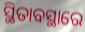
ସ୍ଥିତାବସ୍ଥାରେ